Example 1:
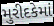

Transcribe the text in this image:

મુરીદકેમાં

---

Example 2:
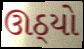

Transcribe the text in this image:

ઊઠ્યો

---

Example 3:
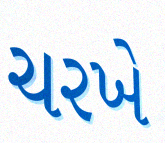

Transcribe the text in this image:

ચરખે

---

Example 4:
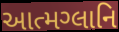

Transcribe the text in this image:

આત્મગ્લાનિ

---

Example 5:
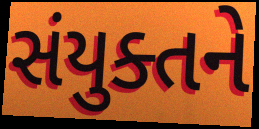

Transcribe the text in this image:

સંયુક્તને